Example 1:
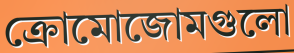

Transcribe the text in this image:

ক্রোমোজোমগুলো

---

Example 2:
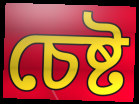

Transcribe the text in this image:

চেষ্ট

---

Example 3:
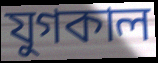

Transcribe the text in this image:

যুগকাল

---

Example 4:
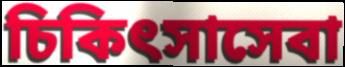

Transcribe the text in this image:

চিকিৎসাসেবা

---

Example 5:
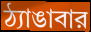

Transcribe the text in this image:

ঠ্যাঙাবার